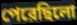
পেরেছিলো